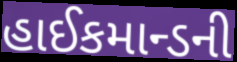
હાઈકમાન્ડની